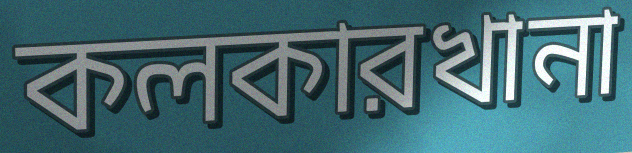
কলকারখানা